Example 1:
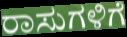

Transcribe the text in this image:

ರಾಸುಗಳಿಗೆ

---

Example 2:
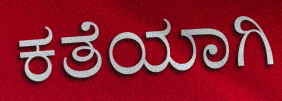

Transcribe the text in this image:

ಕತೆಯಾಗಿ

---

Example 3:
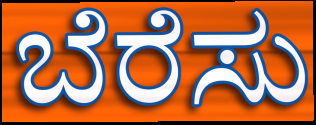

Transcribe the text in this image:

ಬೆರೆಸು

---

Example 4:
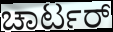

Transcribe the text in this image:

ಚಾರ್ಟರ್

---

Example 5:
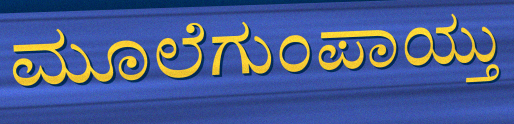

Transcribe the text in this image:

ಮೂಲೆಗುಂಪಾಯ್ತು